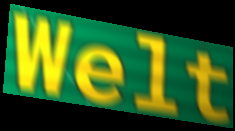
Welt